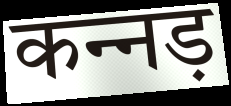
कन्‍नड़